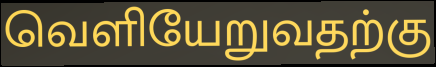
வெளியேறுவதற்கு